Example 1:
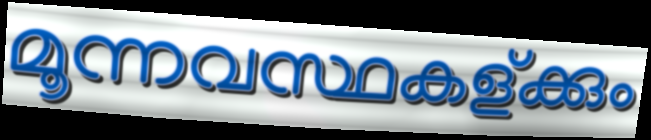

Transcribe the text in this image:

മൂന്നവസ്ഥകള്ക്കും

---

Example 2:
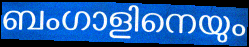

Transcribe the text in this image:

ബംഗാളിനെയും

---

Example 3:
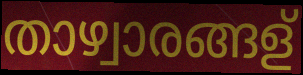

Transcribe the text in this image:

താഴ്വാരങ്ങള്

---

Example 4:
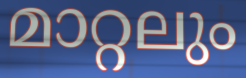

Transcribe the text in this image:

മാറ്റലും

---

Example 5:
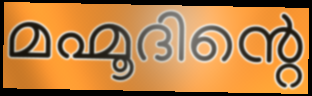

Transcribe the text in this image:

മഹ്മൂദിന്റെ